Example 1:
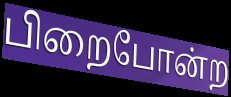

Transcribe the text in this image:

பிறைபோன்ற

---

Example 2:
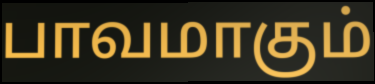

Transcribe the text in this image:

பாவமாகும்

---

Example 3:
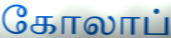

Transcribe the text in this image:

கோலாப்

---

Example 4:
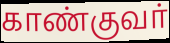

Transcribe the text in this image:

காண்குவர்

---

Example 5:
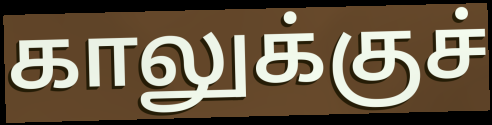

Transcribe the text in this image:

காலுக்குச்